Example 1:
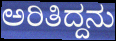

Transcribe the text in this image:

ಅರಿತಿದ್ದನು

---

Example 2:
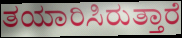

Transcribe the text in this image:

ತಯಾರಿಸಿರುತ್ತಾರೆ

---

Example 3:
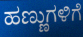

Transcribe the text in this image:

ಹಣ್ಣುಗಳಿಗೆ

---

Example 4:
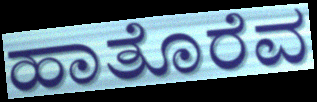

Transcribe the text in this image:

ಹಾತೊರೆವ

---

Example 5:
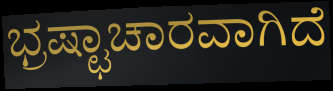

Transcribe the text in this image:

ಭ್ರಷ್ಟಾಚಾರವಾಗಿದೆ